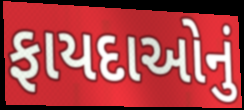
ફાયદાઓનું